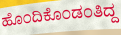
ಹೊಂದಿಕೊಂಡಂತಿದ್ದ